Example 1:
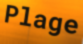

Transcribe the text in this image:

Plage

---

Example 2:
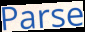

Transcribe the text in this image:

Parse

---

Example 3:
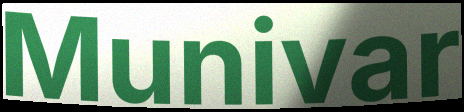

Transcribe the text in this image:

Munivar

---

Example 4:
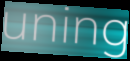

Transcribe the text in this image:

uning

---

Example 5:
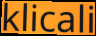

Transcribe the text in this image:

klicali